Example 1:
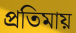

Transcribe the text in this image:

প্রতিমায়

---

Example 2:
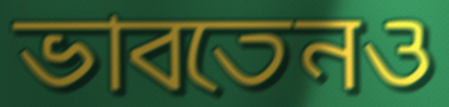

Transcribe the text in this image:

ভাবতেনও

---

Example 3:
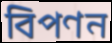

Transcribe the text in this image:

বিপণন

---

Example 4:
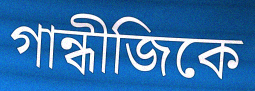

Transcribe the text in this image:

গান্ধীজিকে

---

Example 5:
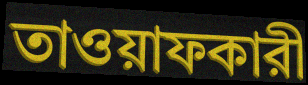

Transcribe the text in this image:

তাওয়াফকারী